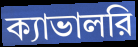
ক্যাভালরি